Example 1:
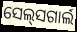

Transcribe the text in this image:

ସେଲ୍‍ସଗାର୍ଲ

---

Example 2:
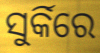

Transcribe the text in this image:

ସୁର୍କିରେ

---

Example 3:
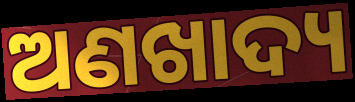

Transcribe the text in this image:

ଅଣଖାଦ୍ୟ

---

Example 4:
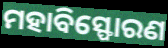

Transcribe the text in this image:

ମହାବିସ୍ଫୋରଣ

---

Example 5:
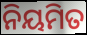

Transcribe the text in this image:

ନିୟମିତ